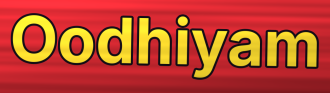
Oodhiyam